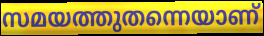
സമയത്തുതന്നെയാണ്